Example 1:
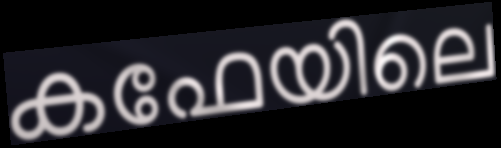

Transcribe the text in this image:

കഫേയിലെ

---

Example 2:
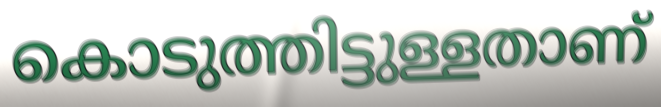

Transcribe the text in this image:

കൊടുത്തിട്ടുള്ളതാണ്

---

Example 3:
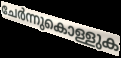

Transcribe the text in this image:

ചേർന്നുകൊള്ളുക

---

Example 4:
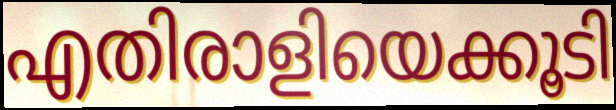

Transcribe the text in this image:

എതിരാളിയെക്കൂടി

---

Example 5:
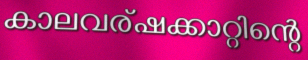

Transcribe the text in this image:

കാലവര്ഷക്കാറ്റിന്റെ